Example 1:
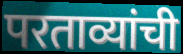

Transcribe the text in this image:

परताव्यांची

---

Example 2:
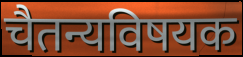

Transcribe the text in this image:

चैतन्यविषयक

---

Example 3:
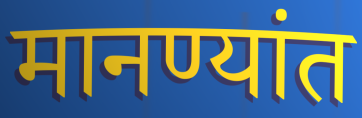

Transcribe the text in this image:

मानण्यांत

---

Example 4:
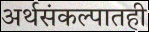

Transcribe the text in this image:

अर्थसंकल्पातही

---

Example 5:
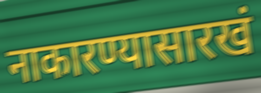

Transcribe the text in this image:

नाकारण्यासारखं